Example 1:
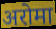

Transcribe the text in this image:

अरोमा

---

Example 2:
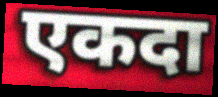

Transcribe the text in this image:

एकदा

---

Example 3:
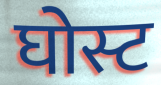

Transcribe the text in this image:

घोस्‍ट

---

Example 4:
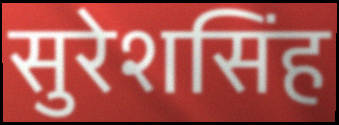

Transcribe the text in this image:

सुरेशसिंह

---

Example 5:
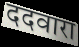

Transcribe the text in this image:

ददवारा